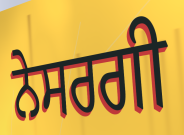
ਨੇਸਰਗੀ